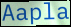
Aapla